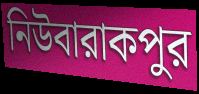
নিউবারাকপুর